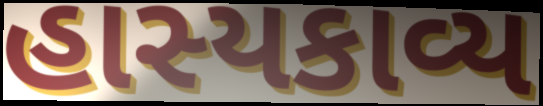
હાસ્યકાવ્ય